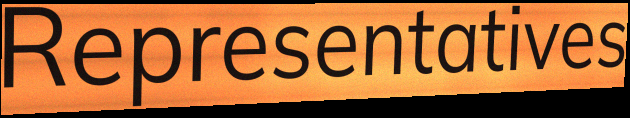
Representatives